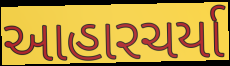
આહારચર્યા